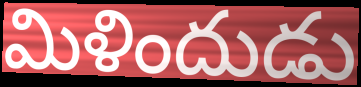
మిళిందుడు